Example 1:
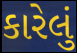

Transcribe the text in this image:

કારેલું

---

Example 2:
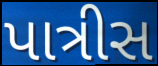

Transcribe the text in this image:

પાત્રીસ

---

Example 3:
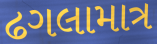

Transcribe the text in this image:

ઢગલામાત્ર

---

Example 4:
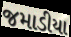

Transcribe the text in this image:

જમાડીયા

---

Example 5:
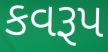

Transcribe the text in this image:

કવરૂપ